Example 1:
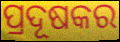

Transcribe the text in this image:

ପ୍ରଦୂଷକର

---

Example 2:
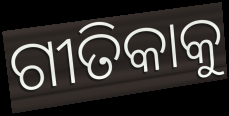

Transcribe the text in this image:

ଗୀତିକାକୁ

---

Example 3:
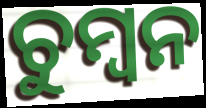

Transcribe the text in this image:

ଚୁମ୍ବନ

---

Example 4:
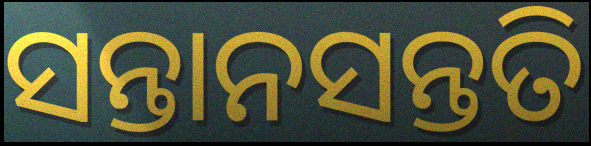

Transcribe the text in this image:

ସନ୍ତାନସନ୍ତତି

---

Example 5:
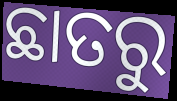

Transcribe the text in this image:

ଛାତରୁ